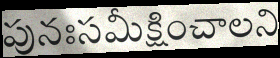
పునఃసమీక్షించాలని